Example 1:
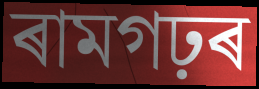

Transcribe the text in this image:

ৰামগঢ়ৰ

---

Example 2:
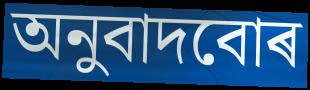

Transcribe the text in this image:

অনুবাদবোৰ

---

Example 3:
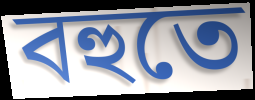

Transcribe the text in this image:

বহুতে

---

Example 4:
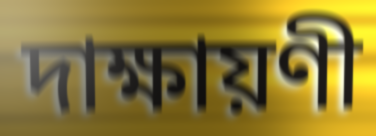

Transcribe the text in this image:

দাক্ষায়ণী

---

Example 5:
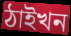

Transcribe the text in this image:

ঠাইখন